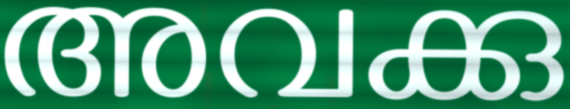
അവക്കു